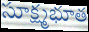
సూక్ష్మభూత